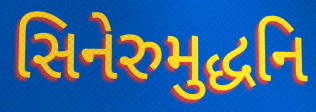
સિનેરુમુદ્ધનિ